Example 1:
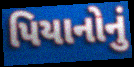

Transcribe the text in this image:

પિયાનોનું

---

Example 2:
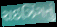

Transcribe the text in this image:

રાઇઝિંગનું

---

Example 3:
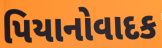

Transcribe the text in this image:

પિયાનોવાદક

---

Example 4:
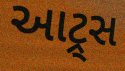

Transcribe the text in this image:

આટ્ર્સ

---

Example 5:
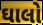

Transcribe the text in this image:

ઘાલો